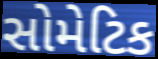
સોમેટિક